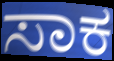
ಸಾಕ